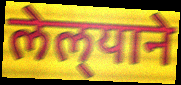
लेल्याने